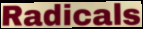
Radicals